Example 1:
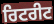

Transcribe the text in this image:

ਰਿਟਰੀਟ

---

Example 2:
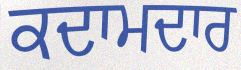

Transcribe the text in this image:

ਕਦਾਮਦਾਰ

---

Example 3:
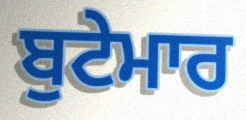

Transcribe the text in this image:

ਬੁਟੇਮਾਰ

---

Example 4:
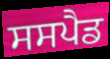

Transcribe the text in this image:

ਸਸਪੈਡ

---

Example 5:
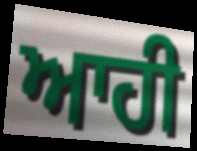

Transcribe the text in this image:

ਆਹੀ